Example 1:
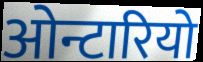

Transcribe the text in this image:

ओन्टारियो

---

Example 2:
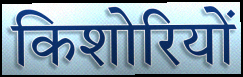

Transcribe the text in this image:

किशोरियों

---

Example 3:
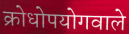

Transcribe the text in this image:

क्रोधोपयोगवाले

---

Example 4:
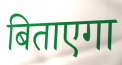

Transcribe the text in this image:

बिताएगा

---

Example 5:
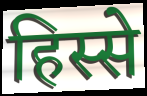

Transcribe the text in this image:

हिस्से